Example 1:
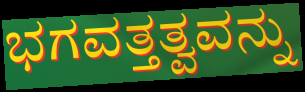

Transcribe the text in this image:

ಭಗವತ್ತತ್ವವನ್ನು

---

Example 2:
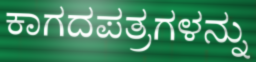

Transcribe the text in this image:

ಕಾಗದಪತ್ರಗಳನ್ನು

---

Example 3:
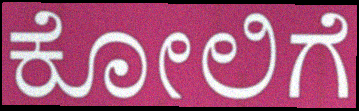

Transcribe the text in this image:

ಕೋಲಿಗೆ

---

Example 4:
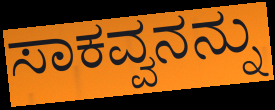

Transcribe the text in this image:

ಸಾಕವ್ವನನ್ನು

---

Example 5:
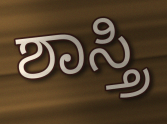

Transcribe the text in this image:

ಶಾಸ್ತ್ರಿ